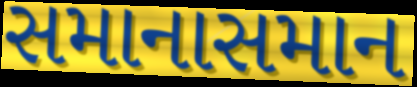
સમાનાસમાન